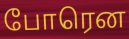
போரென